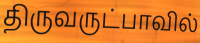
திருவருட்பாவில்